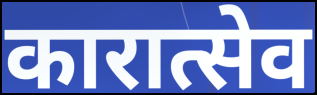
कारात्सेव